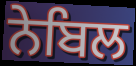
ਨੇਬਿਲ